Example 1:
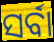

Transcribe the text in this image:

ସର୍ବା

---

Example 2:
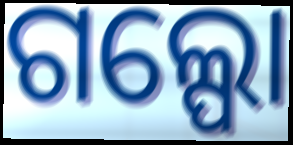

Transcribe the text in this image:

ଗଲ୍ପୋ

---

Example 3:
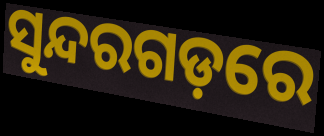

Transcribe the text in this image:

ସୁନ୍ଦରଗଡ଼ରେ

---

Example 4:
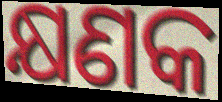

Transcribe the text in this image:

କ୍ଷଣକ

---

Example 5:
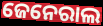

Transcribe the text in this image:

ଜେନେରାଲ